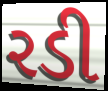
રડી